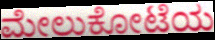
ಮೇಲುಕೋಟೆಯ